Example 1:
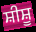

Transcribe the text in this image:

ਸ਼ੀਸ਼ੂ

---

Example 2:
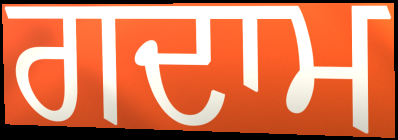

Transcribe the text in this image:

ਗਦਾਮ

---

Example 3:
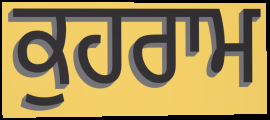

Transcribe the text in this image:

ਕੁਹਰਾਮ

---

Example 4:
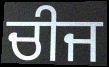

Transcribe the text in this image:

ਚੀਜ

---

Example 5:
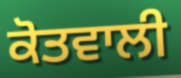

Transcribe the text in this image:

ਕੋਤਵਾਲੀ